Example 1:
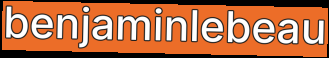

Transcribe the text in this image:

benjaminlebeau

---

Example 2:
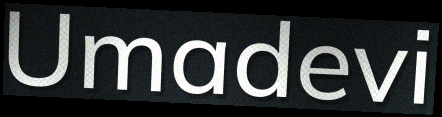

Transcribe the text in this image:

Umadevi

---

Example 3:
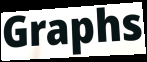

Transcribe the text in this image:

Graphs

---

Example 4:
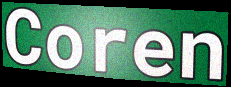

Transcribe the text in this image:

Coren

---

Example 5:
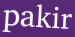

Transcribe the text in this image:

pakir